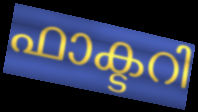
ഫാക്ടറി